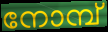
നോമ്പ്